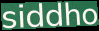
siddho